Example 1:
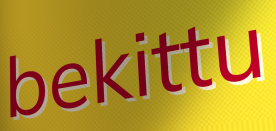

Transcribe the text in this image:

bekittu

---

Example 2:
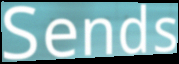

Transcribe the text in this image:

Sends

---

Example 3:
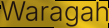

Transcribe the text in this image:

Waragah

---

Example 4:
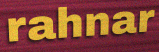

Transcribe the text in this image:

rahnar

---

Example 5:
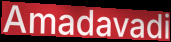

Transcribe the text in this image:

Amadavadi